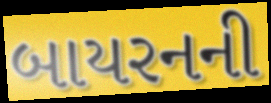
બાયરનની